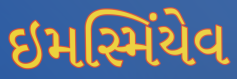
ઇમસ્મિંયેવ